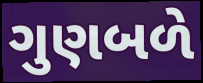
ગુણબળે